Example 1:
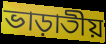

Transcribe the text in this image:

ভাড়াতীয়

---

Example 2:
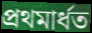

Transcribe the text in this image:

প্ৰথমাৰ্ধত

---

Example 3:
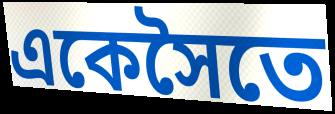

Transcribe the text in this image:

একেসৈতে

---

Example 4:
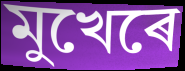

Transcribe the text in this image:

মুখেৰে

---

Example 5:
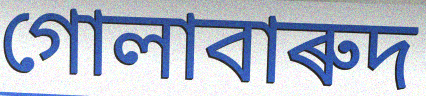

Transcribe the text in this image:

গোলাবাৰুদ